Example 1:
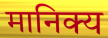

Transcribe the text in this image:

मानिक्य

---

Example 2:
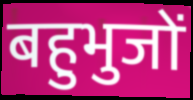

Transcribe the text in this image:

बहुभुजों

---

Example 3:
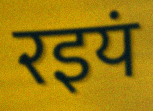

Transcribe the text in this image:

रइयं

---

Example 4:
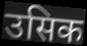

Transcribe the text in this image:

उसिक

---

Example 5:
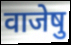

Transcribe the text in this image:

वाजेषु